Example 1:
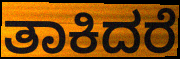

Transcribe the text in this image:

ತಾಕಿದರೆ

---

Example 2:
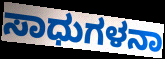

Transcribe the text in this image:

ಸಾಧುಗಳನಾ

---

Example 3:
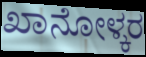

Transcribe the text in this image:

ಖಾನೋಳ್ಕರ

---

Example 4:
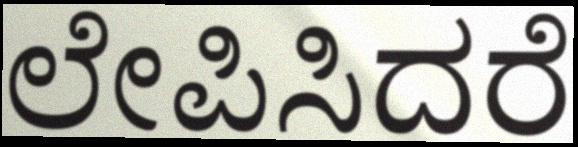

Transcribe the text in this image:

ಲೇಪಿಸಿದರೆ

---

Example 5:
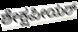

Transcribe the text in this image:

ಶೇಕ್ಷಪೀಯರ್